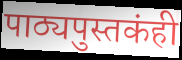
पाठ्यपुस्तकंही